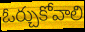
ఓర్చుకోవాలి